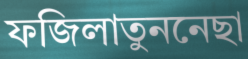
ফজিলাতুননেছা